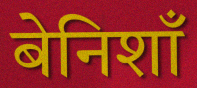
बेनिशाँ